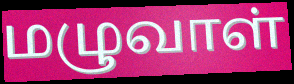
மழுவாள்